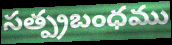
సత్ప్రబంధము